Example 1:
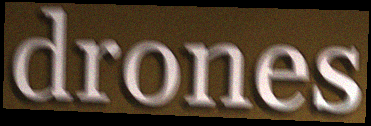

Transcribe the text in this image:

drones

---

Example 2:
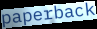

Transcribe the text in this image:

paperback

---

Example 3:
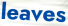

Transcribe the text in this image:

leaves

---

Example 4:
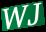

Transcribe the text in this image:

WJ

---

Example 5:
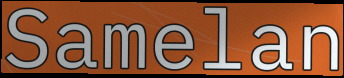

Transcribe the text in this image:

Samelan